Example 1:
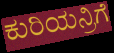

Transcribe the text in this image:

ಕುರಿಯನ್ರಿಗೆ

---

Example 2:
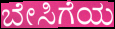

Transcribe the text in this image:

ಬೇಸಿಗೆಯ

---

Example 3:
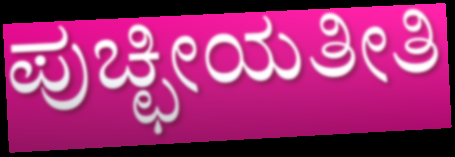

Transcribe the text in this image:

ಪುಚ್ಛೀಯತೀತಿ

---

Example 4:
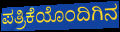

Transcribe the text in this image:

ಪತ್ರಿಕೆಯೊಂದಿಗಿನ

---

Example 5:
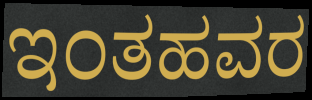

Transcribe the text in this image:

ಇಂತಹವರ